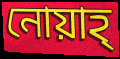
নোয়াহ্